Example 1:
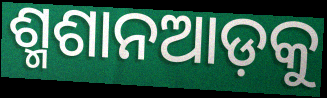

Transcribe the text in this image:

ଶ୍ମଶାନଆଡ଼କୁ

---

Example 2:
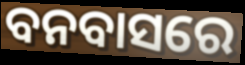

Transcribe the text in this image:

ବନବାସରେ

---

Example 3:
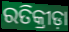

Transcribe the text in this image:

ରତିକ୍ରୀଡ଼ା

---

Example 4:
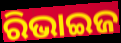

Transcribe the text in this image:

ରିଭାଇଜ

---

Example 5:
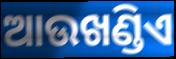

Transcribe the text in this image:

ଆଉଖଣ୍ଡିଏ